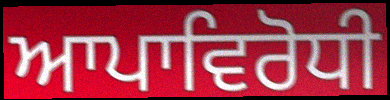
ਆਪਾਵਿਰੋਧੀ